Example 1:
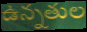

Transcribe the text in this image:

ఉన్నతుల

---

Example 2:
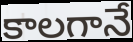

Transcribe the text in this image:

కాలగానే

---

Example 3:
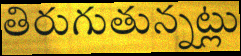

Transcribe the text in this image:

తిరుగుతున్నట్లు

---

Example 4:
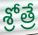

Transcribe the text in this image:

శ్రోత్రే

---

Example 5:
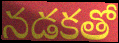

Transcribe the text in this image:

నడకతో